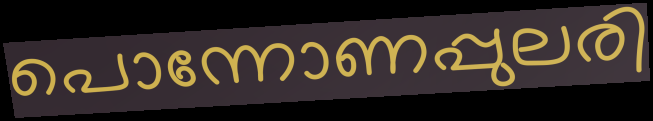
പൊന്നോണപ്പുലരി